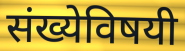
संख्येविषयी